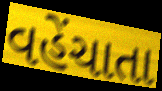
વહેંચાતા